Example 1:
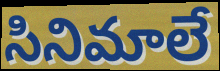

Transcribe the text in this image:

సినిమాలే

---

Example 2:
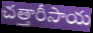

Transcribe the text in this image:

చత్తారీసాయ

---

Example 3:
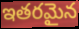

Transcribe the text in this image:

ఇతరమైన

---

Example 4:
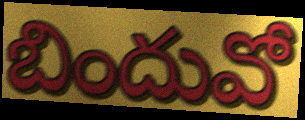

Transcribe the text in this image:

బిందువో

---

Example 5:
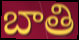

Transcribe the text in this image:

బాతి